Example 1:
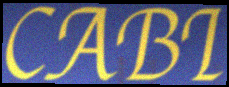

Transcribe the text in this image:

CABI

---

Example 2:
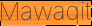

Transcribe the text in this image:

Mawaqit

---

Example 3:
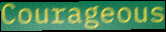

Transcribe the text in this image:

Courageous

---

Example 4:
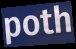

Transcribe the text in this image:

poth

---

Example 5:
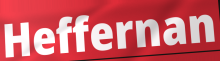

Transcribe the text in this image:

Heffernan